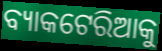
ବ୍ୟାକଟେରିଆକୁ